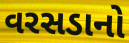
વરસડાનો